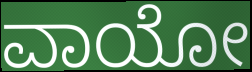
ವಾಯೋ